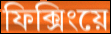
ফিক্সিংয়ে